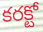
కరక్టో